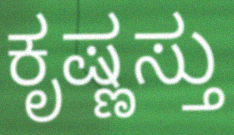
ಕೃಷ್ಣಸ್ತು